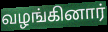
வழங்கினார்